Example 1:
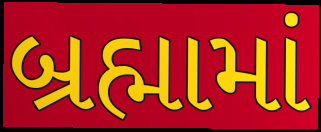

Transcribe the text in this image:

બ્રહ્મામાં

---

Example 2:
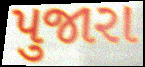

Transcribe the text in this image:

પુજારા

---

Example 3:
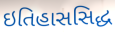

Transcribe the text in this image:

ઇતિહાસસિદ્ધ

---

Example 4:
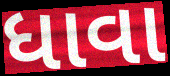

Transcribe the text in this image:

ધાવા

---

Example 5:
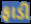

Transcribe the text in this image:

ફાડી